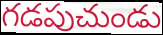
గడపుచుండు